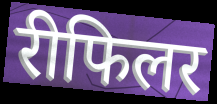
रीफिलर